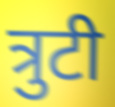
त्रुटी